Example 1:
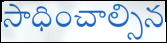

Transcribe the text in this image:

సాధించాల్సిన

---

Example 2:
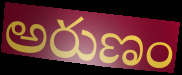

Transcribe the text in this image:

అరుణం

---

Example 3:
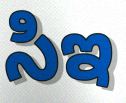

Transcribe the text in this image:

సిఇ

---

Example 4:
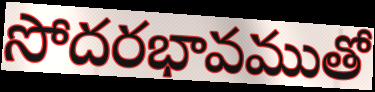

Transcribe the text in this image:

సోదరభావముతో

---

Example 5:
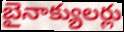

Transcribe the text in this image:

బైనాక్యులర్లు